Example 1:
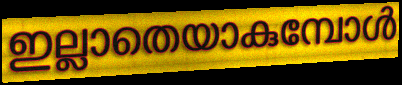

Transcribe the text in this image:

ഇല്ലാതെയാകുമ്പോൾ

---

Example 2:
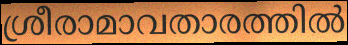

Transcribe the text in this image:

ശ്രീരാമാവതാരത്തിൽ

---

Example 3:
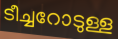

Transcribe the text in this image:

ടീച്ചറോടുള്ള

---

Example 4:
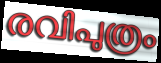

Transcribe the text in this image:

രവിപുത്രം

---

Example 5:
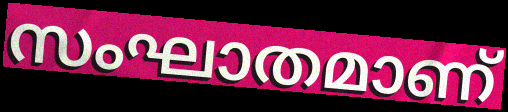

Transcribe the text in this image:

സംഘാതമാണ്